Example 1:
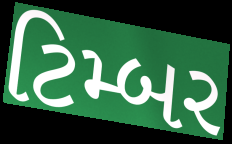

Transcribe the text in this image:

ટિમ્બર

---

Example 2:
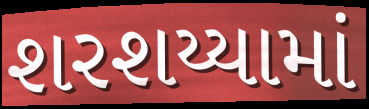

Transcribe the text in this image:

શરશય્યામાં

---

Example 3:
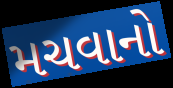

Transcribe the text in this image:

મચવાનો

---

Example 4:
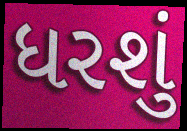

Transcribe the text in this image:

ધરશું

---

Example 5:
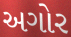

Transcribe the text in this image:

અગોર